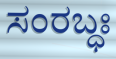
ಸಂರಬ್ಧಃ